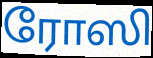
ரோஸி